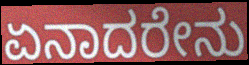
ಏನಾದರೇನು